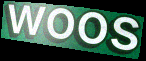
woos